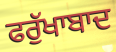
ਫਰੁੱਖਾਬਾਦ